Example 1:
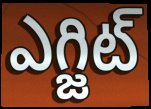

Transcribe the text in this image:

ఎగ్జిట్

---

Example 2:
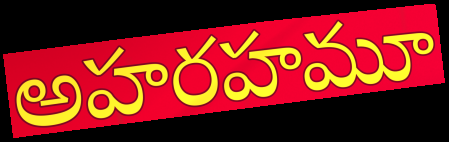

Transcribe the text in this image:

అహరహమూ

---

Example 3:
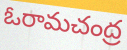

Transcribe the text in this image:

ఓరామచంద్ర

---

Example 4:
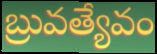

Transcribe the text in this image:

బ్రువత్యేవం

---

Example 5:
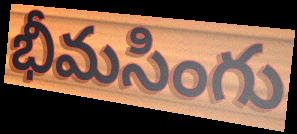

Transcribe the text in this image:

భీమసింగు